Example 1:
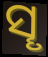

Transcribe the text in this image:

ସୄ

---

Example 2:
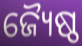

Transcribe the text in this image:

ଜ୍ଯୈଷ୍ଠ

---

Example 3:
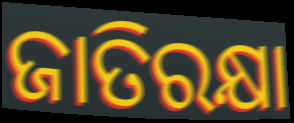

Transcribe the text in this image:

ଜାତିରକ୍ଷା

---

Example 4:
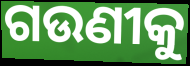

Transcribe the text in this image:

ଗଉଣୀକୁ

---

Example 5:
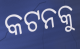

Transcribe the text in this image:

କଟନକୁ